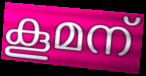
കൂമന്